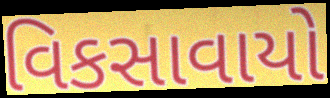
વિકસાવાયો